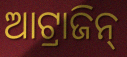
ଆଟ୍ରାଜିନ୍